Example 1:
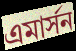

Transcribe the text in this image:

এমার্সন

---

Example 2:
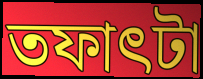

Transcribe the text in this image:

তফাৎটা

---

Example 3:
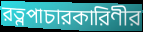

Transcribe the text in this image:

রত্নপাচারকারিণীর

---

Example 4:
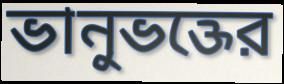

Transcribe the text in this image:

ভানুভক্তের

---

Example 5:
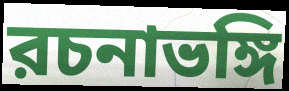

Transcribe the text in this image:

রচনাভঙ্গি